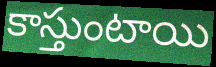
కాస్తుంటాయి